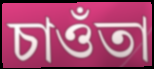
চাওঁতা